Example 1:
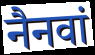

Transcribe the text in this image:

नैनवां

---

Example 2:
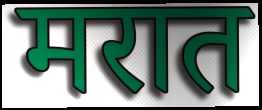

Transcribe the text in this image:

मरात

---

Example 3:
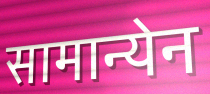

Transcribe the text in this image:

सामान्येन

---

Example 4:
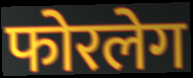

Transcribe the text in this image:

फोरलेग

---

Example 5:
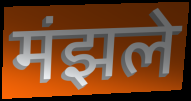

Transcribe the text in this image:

मंझले